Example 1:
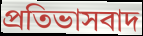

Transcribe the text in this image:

প্রতিভাসবাদ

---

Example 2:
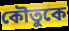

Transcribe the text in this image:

কৌতুকে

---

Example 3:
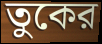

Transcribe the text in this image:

তুকের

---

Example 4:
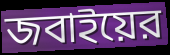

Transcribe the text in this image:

জবাইয়ের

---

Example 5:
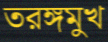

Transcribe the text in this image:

তরঙ্গমুখ